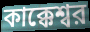
কাক্কেশ্বর